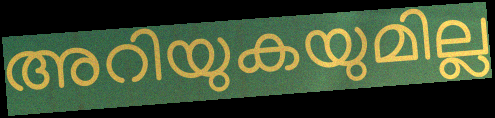
അറിയുകയുമില്ല